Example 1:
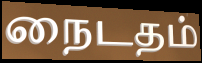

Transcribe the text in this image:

நைடதம்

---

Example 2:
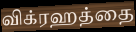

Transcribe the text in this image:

விக்ரஹத்தை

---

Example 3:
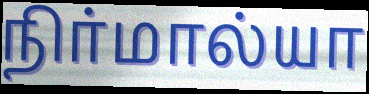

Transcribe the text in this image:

நிர்மால்யா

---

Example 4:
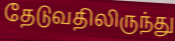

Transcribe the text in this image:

தேடுவதிலிருந்து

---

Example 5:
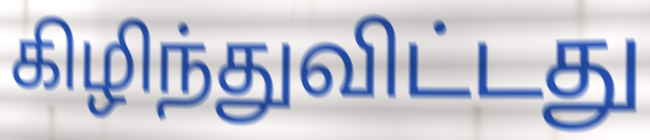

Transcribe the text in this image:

கிழிந்துவிட்டது